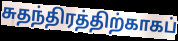
சுதந்திரத்திற்காகப்